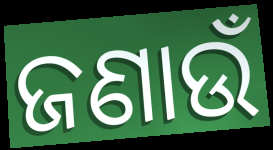
ଜଣାଉଁ